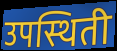
उपस्थिती